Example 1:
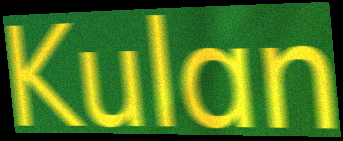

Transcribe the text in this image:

Kulan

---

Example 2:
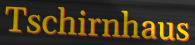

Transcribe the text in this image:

Tschirnhaus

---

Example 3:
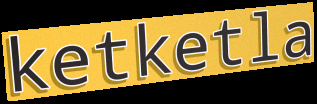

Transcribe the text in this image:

ketketla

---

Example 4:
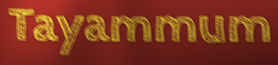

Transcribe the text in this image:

Tayammum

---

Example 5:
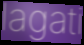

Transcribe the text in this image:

lagati